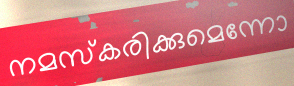
നമസ്കരിക്കുമെന്നോ